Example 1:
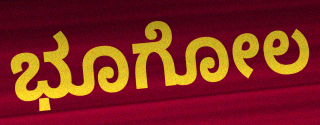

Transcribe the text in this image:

ಭೂಗೋಲ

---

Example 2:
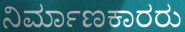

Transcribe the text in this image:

ನಿರ್ಮಾಣಕಾರರು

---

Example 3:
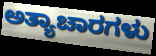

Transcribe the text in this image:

ಅತ್ಯಾಚಾರಗಳು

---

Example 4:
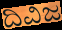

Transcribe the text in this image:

ದಿವಿಜ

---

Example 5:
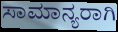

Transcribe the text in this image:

ಸಾಮಾನ್ಯರಾಗಿ